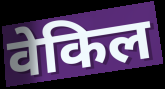
वेकिल